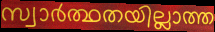
സ്വാർത്ഥതയില്ലാത്ത